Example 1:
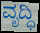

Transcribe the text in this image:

ವೃದ್ಧಿ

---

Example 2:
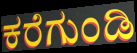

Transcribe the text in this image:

ಕರೆಗುಂಡಿ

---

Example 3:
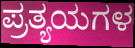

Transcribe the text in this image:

ಪ್ರತ್ಯಯಗಳ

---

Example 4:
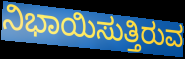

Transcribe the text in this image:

ನಿಭಾಯಿಸುತ್ತಿರುವ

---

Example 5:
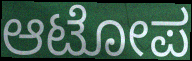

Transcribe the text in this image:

ಆಟೋಪ